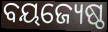
ବୟଜ୍ୟେଷ୍ଠ